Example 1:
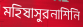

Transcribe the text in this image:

মহিষাসুরনাশিনি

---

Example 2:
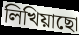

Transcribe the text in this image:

লিখিয়াছো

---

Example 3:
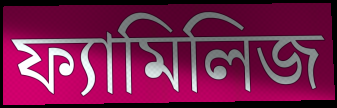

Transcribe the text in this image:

ফ্যামিলিজ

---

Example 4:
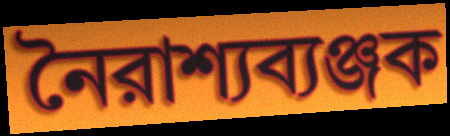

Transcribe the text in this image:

নৈরাশ্যব্যঞ্জক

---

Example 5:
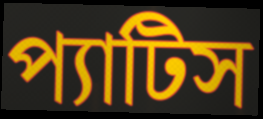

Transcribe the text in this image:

প্যাটিস